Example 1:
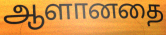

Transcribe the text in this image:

ஆளானதை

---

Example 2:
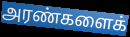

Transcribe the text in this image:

அரண்களைக்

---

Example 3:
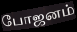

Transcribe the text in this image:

போஜனம்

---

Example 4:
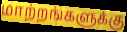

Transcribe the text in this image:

மாற்றங்களுக்கு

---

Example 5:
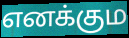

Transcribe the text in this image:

எனக்கும